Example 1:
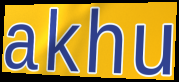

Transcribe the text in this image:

akhu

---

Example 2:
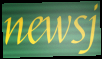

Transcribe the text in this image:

newsj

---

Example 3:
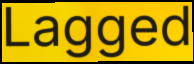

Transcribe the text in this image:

Lagged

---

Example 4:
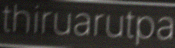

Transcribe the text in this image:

thiruarutpa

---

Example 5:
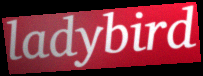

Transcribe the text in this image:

ladybird